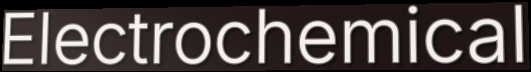
Electrochemical